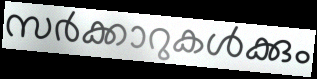
സർക്കാറുകൾക്കും